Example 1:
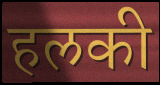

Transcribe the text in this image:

हलकी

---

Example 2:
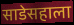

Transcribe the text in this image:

साडेसहाला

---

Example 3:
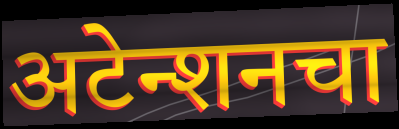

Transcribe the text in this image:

अटेन्शनचा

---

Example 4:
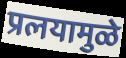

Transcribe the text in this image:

प्रलयामुळे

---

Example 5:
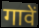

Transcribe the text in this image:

गावें